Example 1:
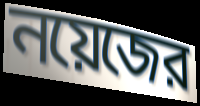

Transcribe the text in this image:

নয়েজের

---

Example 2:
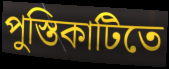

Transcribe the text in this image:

পুস্তিকাটিতে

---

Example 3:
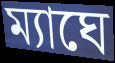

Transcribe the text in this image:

ম্যাঘে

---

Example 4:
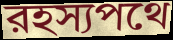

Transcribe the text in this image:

রহস্যপথে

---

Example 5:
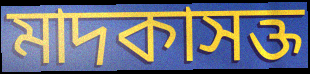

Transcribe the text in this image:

মাদকাসক্ত